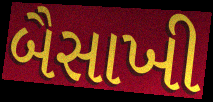
બૈસાખી